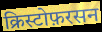
क्रिस्टोफ़रसन